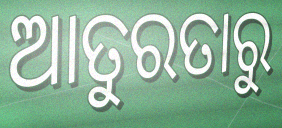
ଆତୁରତାରୁ